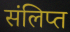
संलिप्त